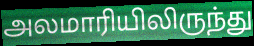
அலமாரியிலிருந்து